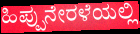
ಹಿಪ್ಪುನೇರಳೆಯಲ್ಲಿ